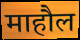
माहौल